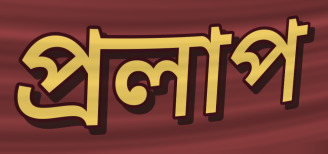
প্রলাপ